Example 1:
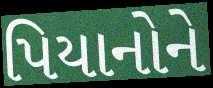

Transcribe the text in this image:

પિયાનોને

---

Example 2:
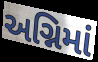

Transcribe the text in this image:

અગ્નિમાં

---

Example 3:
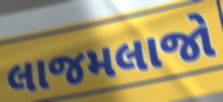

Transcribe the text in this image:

લાજમલાજો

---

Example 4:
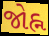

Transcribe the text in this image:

જોહ્ન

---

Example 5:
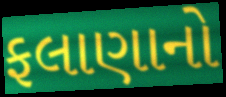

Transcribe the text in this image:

ફલાણાનો